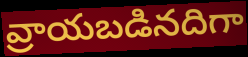
వ్రాయబడినదిగా